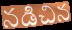
నడిచిన